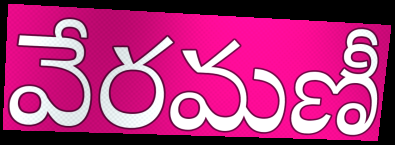
వేరమణీ